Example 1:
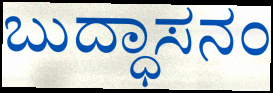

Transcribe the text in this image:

ಬುದ್ಧಾಸನಂ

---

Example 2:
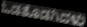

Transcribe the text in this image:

ಓಡತೊಡಗಿದಳು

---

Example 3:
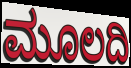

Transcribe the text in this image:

ಮೂಲದಿ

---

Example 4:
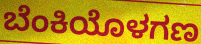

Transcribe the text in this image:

ಬೆಂಕಿಯೊಳಗಣ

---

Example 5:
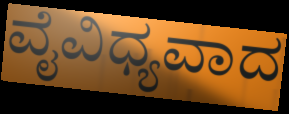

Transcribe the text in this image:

ವೈವಿಧ್ಯವಾದ